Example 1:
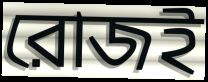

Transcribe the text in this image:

রোজই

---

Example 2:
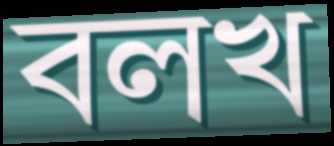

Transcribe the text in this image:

বলখ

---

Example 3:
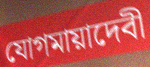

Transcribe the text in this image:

যোগমায়াদেবী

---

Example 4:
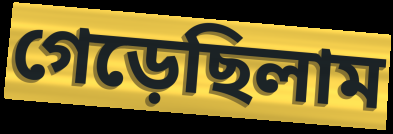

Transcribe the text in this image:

গেড়েছিলাম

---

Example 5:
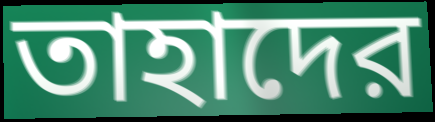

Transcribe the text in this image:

তাহাদের